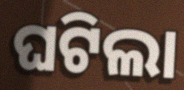
ଘଟିଲା